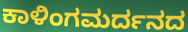
ಕಾಳಿಂಗಮರ್ದನದ